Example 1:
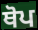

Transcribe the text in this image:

ਥੋਪ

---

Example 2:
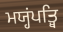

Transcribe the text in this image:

ਮਯ੍ਹਂਪਤ੍ਥਿ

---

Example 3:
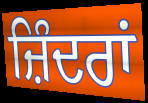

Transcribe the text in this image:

ਜ਼ਿੰਦਰਾਂ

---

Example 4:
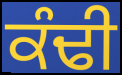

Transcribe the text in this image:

ਕੰਢੀ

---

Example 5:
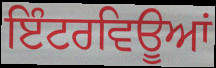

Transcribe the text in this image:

ਇੰਟਰਵਿਊਆਂ